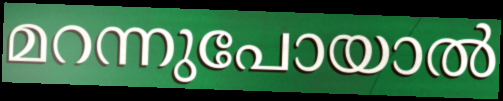
മറന്നുപോയാൽ